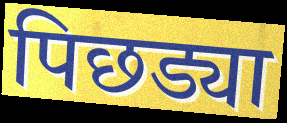
पिछड्या